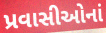
પ્રવાસીઓનાં